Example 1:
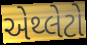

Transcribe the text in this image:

એથ્લેટો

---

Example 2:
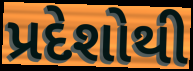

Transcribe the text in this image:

પ્રદેશોથી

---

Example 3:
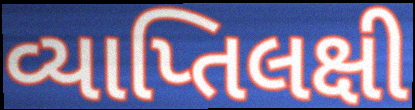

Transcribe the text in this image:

વ્યાપ્તિલક્ષી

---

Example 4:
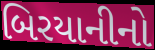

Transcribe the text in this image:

બિરયાનીનો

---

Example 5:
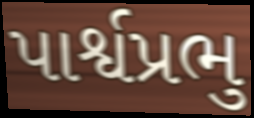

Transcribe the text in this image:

પાર્શ્વપ્રભુ